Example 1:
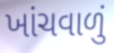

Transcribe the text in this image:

ખાંચવાળું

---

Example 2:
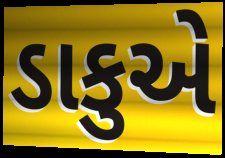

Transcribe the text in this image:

ડાકુએ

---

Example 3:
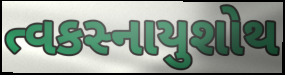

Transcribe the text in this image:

ત્વકસ્નાયુશોથ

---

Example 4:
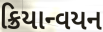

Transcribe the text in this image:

ક્રિયાન્વયન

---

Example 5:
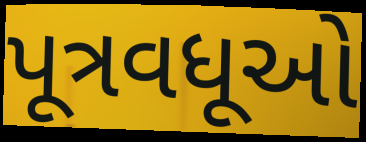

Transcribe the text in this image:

પૂત્રવધૂઓ